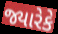
જ્યારેકે